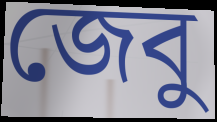
জেবু